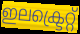
ഇലക്ട്രെറ്റ്